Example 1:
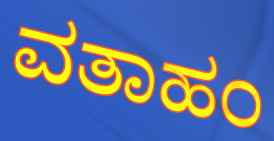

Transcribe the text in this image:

ವತಾಹಂ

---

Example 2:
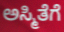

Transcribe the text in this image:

ಅಸ್ಮಿತೆಗೆ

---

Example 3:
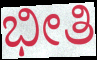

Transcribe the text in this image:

ಭೀತಿ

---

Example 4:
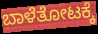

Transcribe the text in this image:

ಬಾಳೆತೋಟಕ್ಕೆ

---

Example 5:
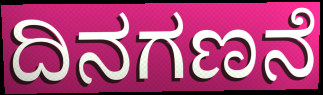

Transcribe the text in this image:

ದಿನಗಣನೆ